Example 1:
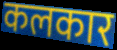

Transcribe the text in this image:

कलकार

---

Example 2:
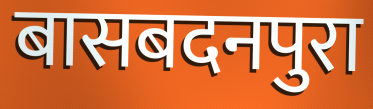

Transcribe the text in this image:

बासबदनपुरा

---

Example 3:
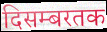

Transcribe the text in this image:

दिसम्बरतक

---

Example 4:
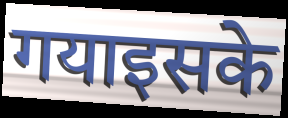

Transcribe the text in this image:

गयाइसके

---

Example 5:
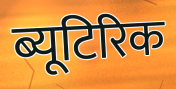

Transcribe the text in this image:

ब्यूटिरिक